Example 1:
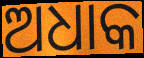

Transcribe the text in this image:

ଅଧାକ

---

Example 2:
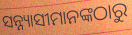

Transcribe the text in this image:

ସନ୍ନ୍ୟାସୀମାନଙ୍କଠାରୁ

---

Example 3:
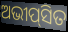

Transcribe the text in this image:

ଅଭୀପ୍‌ସିତ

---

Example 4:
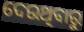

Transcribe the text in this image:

ଦେଉଥିବାରୁ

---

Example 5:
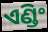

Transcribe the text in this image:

ଏଣ୍ଡିଂ